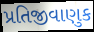
પ્રતિજીવાણુક